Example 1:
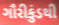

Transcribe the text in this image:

ગૌરીકુંડથી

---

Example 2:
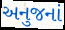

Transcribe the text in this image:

અનુજનાં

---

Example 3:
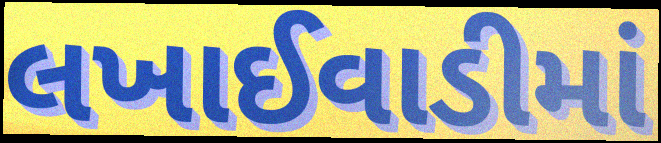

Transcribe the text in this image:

લખાઈવાડીમાં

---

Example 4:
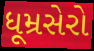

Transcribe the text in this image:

ધૂમ્રસેરો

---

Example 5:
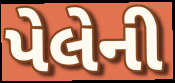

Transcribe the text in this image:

પેલેની